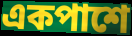
একপাশে